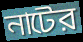
নাটের